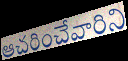
ఆచరించేవారిని